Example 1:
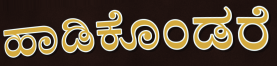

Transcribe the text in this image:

ಹಾಡಿಕೊಂಡರೆ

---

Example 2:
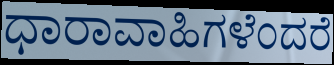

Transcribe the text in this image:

ಧಾರಾವಾಹಿಗಳೆಂದರೆ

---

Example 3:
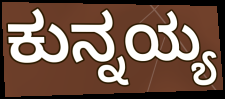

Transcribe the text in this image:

ಕುನ್ನಯ್ಯ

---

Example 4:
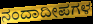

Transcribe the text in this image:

ನಂದಾದೀಪಗಳ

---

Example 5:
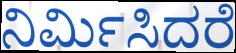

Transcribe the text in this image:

ನಿರ್ಮಿಸಿದರೆ